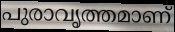
പുരാവൃത്തമാണ്